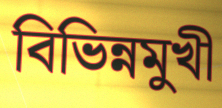
বিভিন্নমুখী